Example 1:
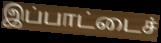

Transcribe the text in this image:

இப்பாட்டைச்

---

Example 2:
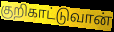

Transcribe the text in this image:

குறிகாட்டுவான்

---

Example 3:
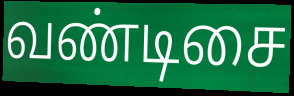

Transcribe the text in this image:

வண்டிசை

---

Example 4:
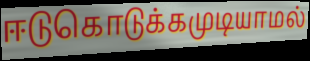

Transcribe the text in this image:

ஈடுகொடுக்கமுடியாமல்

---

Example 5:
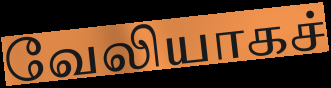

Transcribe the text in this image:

வேலியாகச்